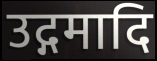
उद्गमादि